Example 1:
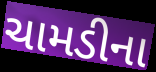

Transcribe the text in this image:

ચામડીના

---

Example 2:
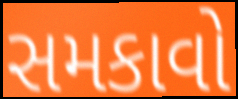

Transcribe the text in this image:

સમકાવો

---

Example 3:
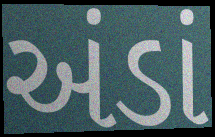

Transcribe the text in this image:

અંડાં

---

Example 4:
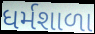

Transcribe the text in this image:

ધર્મશાળા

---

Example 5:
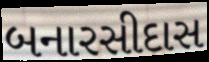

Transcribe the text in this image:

બનારસીદાસ